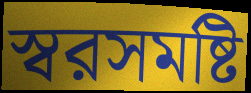
স্বরসমষ্টি